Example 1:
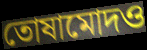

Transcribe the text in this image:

তোষামোদও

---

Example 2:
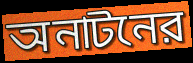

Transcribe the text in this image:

অনাটনের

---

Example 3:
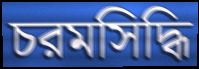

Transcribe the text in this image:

চরমসিদ্ধি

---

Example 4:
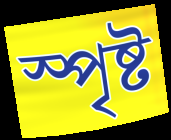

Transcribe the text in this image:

স্পৃষ্ট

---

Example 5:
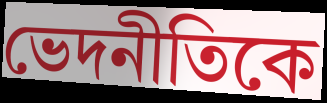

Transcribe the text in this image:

ভেদনীতিকে